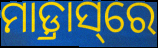
ମାଡ଼୍ରାସ୍‌ରେ